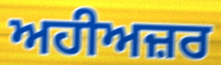
ਅਹੀਅਜ਼ਰ